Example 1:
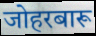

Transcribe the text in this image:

जोहरबारू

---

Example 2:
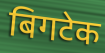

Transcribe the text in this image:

बिगटेक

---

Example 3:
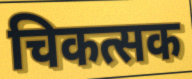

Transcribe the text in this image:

चिकत्सक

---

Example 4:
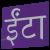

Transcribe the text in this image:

ईंटा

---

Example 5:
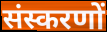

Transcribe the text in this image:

संस्करणों